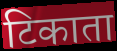
टिकाता